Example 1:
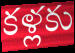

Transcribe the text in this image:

కళ్లకు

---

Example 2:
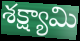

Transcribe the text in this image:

శక్ష్యామి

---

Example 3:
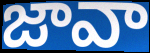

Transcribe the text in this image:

జావా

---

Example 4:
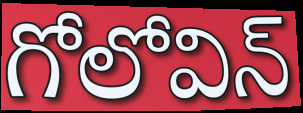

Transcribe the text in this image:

గోలోవిన్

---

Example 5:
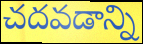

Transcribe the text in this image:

చదవడాన్ని